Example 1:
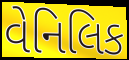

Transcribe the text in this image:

વેનિલિક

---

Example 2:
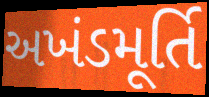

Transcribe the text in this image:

અખંડમૂર્તિ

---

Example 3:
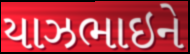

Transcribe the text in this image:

યાઝભાઇને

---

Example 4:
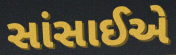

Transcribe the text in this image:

સાંસાઈએ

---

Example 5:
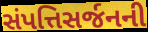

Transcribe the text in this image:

સંપત્તિસર્જનની